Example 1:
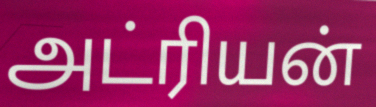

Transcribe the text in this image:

அட்ரியன்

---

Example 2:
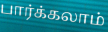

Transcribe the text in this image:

பார்க்கலாம்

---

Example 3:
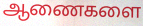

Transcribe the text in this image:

ஆணைகளை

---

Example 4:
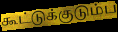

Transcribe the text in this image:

கூட்டுக்குடும்ப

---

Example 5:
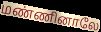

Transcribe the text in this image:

மண்ணினாலே